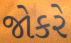
જોકરે